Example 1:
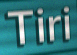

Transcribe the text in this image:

Tiri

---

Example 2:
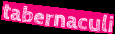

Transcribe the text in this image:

tabernaculi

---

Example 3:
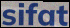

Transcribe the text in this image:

sifat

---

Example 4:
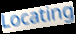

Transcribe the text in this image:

Locating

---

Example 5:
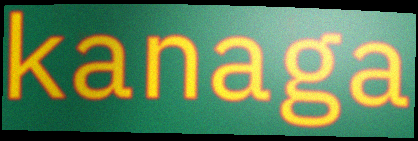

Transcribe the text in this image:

kanaga